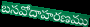
బసవోదాహరణము